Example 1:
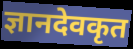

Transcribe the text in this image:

ज्ञानदेवकृत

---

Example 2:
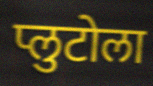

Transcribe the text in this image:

प्लुटोला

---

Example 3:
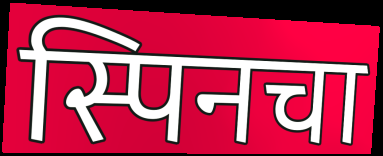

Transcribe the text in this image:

स्पिनचा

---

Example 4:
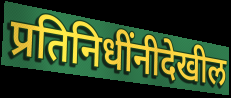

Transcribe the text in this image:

प्रतिनिधींनीदेखील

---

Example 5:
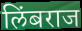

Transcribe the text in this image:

लिंबराज